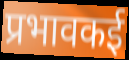
प्रभावकई